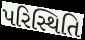
પરિસ્થિતિ